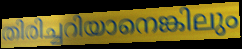
തിരിച്ചറിയാനെങ്കിലും